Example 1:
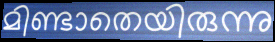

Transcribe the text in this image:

മിണ്ടാതെയിരുന്നു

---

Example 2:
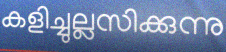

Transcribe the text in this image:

കളിച്ചുല്ലസിക്കുന്നു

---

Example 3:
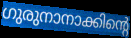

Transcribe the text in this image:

ഗുരുനാനാക്കിന്റെ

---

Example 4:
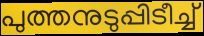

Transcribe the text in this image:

പുത്തനുടുപ്പിടീച്ച്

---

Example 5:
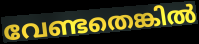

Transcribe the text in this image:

വേണ്ടതെങ്കിൽ